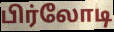
பிர்லோடி